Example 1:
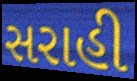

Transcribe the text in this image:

સરાહી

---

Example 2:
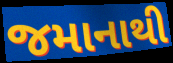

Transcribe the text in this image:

જમાનાથી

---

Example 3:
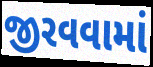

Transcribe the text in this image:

જીરવવામાં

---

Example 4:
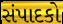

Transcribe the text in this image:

સંપાદકો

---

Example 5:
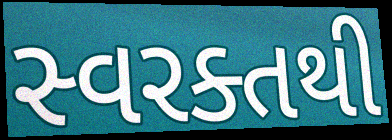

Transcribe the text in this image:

સ્વરક્તથી